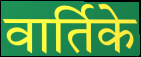
वार्तिके